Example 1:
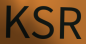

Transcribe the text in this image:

KSR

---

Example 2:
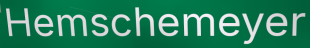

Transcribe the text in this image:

Hemschemeyer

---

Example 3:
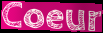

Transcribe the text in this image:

Coeur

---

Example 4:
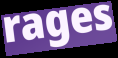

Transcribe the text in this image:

rages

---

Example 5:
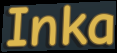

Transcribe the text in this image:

Inka